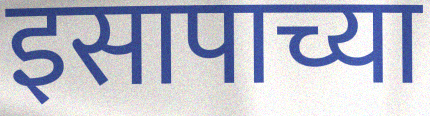
इसापाच्या